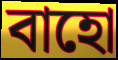
বাহো